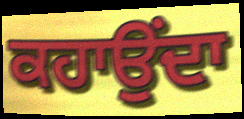
ਕਹਾਉਂਦਾ